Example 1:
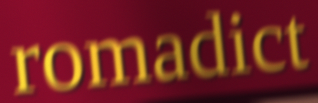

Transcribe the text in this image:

romadict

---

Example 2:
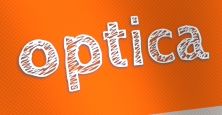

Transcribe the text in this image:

optica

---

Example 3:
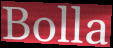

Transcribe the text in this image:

Bolla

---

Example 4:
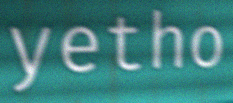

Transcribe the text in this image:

yetho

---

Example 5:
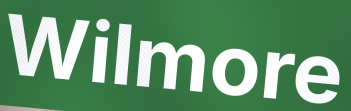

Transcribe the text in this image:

Wilmore